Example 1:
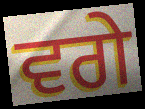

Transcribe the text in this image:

ਵਗੇ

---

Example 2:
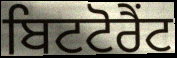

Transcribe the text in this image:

ਬਿਟਟੋਰੈਂਟ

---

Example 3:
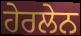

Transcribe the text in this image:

ਹੇਰਲੇਨ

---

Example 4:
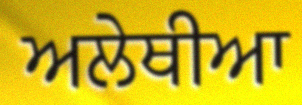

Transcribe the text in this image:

ਅਲੇਥੀਆ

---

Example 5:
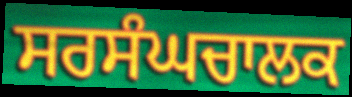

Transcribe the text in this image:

ਸਰਸੰਘਚਾਲਕ